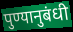
पुण्यानुबंधी